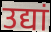
उद्यां